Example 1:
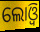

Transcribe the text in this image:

ଲୋଓ୍ବି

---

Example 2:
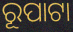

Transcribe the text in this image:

ରୂପାଟା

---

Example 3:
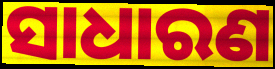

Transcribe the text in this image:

ସାଧାରଣ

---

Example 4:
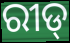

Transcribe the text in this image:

ରୀଡ୍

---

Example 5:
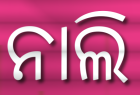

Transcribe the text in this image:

ନାଲି